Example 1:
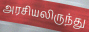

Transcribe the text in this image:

அரசியலிருந்து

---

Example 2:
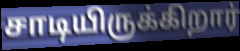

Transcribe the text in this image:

சாடியிருக்கிறார்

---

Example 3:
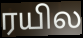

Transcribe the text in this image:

ரயில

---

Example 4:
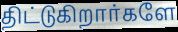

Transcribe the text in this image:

திட்டுகிறார்களே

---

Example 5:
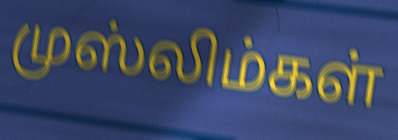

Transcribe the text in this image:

முஸ்லிம்கள்